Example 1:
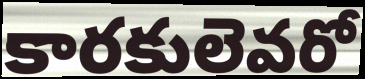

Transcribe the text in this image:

కారకులెవరో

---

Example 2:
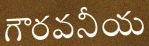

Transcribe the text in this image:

గౌరవనీయ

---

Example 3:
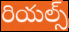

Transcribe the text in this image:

రియల్స్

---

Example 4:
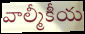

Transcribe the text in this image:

వాల్మీకీయ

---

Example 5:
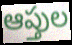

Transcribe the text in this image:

ఆప్తుల